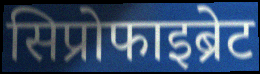
सिप्रोफाइब्रेट